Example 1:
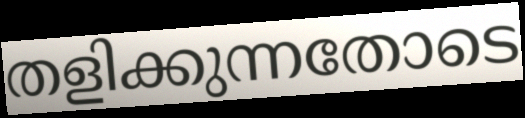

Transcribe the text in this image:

തളിക്കുന്നതോടെ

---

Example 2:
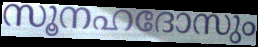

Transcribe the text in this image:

സൂനഹദോസും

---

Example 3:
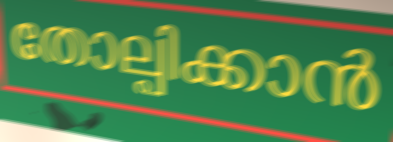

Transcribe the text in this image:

തോല്പിക്കാൻ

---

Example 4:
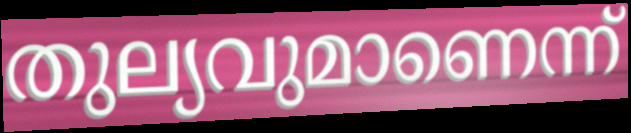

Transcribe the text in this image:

തുല്യവുമാണെന്ന്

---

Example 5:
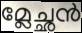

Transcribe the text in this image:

മ്ലേച്ഛൻ